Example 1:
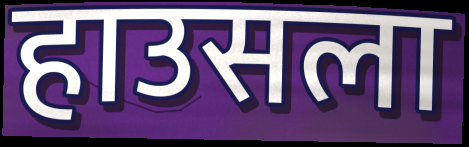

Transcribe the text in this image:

हाउसला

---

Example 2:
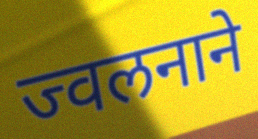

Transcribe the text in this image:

ज्वलनाने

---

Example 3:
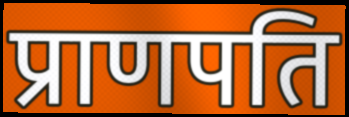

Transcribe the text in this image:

प्राणपति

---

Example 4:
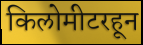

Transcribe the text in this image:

किलोमीटरहून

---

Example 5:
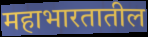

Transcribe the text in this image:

महाभारतातील